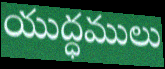
యుద్ధములు